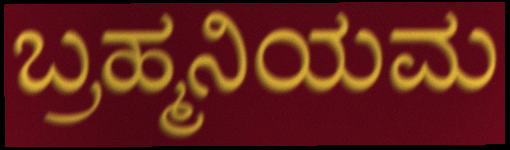
ಬ್ರಹ್ಮನಿಯಮ